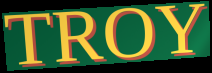
TROY